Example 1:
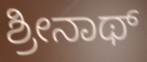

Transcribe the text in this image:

ಶ್ರೀನಾಥ್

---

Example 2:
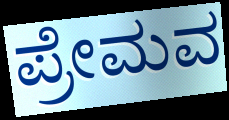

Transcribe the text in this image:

ಪ್ರೇಮವ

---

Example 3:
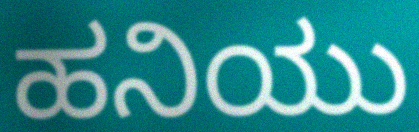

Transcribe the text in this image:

ಹನಿಯು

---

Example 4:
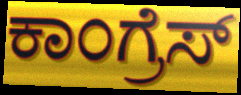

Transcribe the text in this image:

ಕಾಂಗ್ರೆಸ್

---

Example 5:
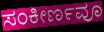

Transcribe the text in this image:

ಸಂಕೀರ್ಣವೂ